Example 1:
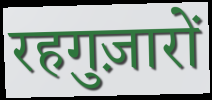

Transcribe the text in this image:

रहगुज़ारों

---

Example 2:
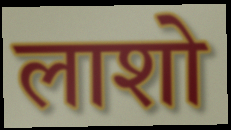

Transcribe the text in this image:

लाशो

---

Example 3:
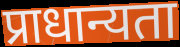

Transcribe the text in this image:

प्राधान्यता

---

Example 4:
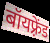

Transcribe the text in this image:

बॉयफ़्रेंड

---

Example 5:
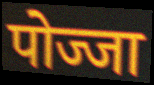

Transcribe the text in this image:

पोज्जा